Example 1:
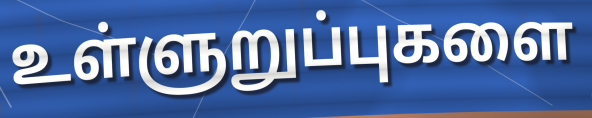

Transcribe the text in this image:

உள்ளுறுப்புகளை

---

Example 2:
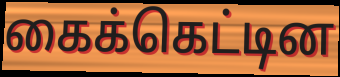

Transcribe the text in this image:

கைக்கெட்டின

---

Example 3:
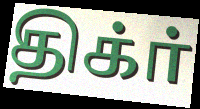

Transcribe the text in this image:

திக்ர்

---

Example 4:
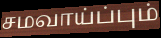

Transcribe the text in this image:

சமவாய்ப்பும்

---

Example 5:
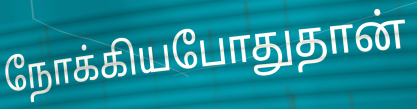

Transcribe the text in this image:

நோக்கியபோதுதான்